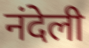
नंदेली